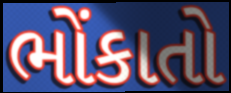
ભોંકાતો